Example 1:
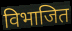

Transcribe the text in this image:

विभाजित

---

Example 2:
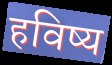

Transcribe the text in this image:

हविष्य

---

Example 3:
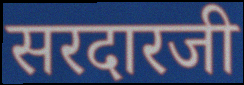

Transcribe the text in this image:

सरदारजी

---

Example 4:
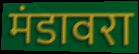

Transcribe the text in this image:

मंडावरा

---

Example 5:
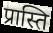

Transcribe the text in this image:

प्रास्ति